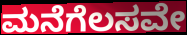
ಮನೆಗೆಲಸವೇ